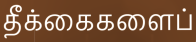
தீக்கைகளைப்